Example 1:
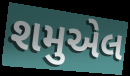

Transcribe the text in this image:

શમુએલ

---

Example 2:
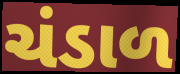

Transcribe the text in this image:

ચંડાળ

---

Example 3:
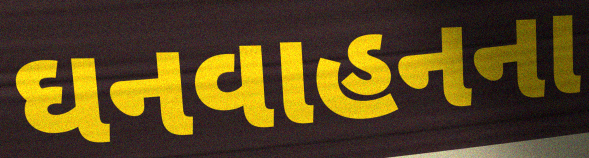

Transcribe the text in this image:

ઘનવાહનના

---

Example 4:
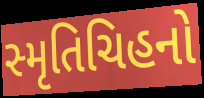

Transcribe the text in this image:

સ્મૃતિચિહનો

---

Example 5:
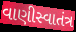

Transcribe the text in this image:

વાણીસ્વાતંત્ર